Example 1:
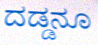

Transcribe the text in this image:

ದಡ್ಡನೂ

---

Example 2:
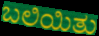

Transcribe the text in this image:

ಬಲಿಯಿತು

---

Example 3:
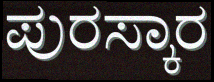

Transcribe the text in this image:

ಪುರಸ್ಕಾರ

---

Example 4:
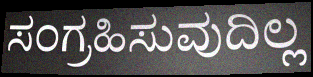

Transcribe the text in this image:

ಸಂಗ್ರಹಿಸುವುದಿಲ್ಲ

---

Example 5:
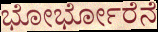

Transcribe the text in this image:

ಭೋರ್ಭೋರೆನೆ